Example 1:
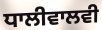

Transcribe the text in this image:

ਧਾਲੀਵਾਲਵੀ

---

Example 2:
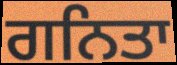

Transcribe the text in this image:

ਗਨਿਤਾ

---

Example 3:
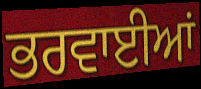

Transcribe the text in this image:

ਭਰਵਾਈਆਂ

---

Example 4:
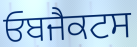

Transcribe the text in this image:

ਓਬਜੈਕਟਸ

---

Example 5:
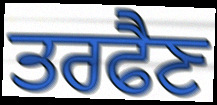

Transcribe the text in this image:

ਤਰਫੈਣ